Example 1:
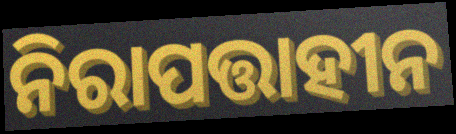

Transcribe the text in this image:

ନିରାପତ୍ତାହୀନ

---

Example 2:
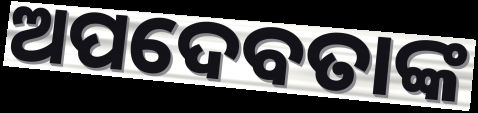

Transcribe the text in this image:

ଅପଦେବତାଙ୍କ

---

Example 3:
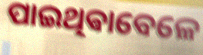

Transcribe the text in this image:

ପାଇଥିଵାବେଳେ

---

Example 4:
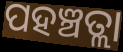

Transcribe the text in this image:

ପହଞ୍ଚତ୍ଲା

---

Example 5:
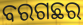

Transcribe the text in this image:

ବରଗଛର